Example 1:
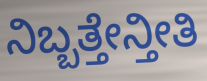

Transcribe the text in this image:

ನಿಬ್ಬತ್ತೇನ್ತೀತಿ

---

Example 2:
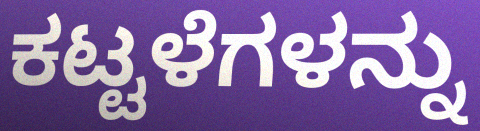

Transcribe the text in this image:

ಕಟ್ಟಳೆಗಳನ್ನು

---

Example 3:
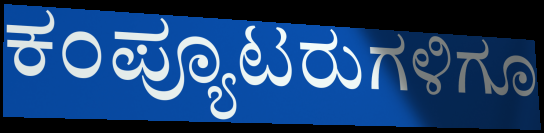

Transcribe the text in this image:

ಕಂಪ್ಯೂಟರುಗಳಿಗೂ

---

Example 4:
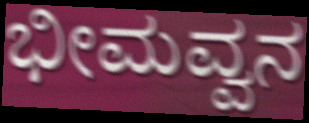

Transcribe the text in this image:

ಭೀಮವ್ವನ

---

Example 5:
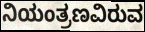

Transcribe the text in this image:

ನಿಯಂತ್ರಣವಿರುವ